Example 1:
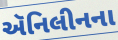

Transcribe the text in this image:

ઍનિલીનના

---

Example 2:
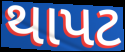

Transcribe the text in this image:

થાપટ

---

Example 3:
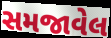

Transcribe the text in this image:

સમજાવેલ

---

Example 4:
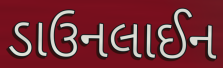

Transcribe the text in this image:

ડાઉનલાઈન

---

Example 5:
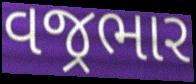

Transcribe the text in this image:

વજ્રભાર